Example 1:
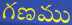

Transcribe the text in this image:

గణము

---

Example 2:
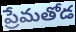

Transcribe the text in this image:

ప్రేమతోడ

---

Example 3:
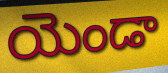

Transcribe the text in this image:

యెండా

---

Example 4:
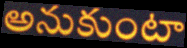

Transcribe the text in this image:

అనుకుంటా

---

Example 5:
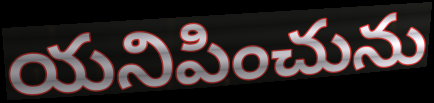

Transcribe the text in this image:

యనిపించును